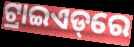
ଟ୍ରାଇଏଡ୍‌ରେ